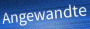
Angewandte